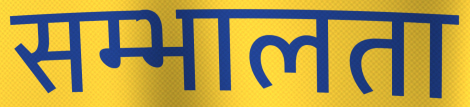
सम्भालता